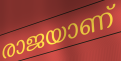
രാജയാണ്